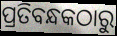
ପ୍ରତିବନ୍ଧକଠାରୁ